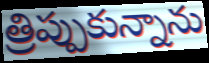
త్రిప్పుకున్నాను